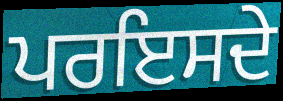
ਪਰਇਸਦੇ